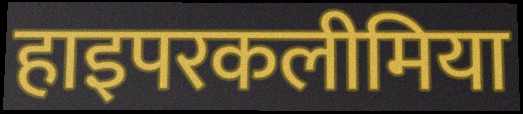
हाइपरकलीमिया